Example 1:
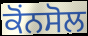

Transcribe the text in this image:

ਕੋਂਨਸੋਲ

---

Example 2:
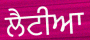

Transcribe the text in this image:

ਲੈਟੀਆ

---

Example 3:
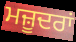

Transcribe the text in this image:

ਮਜ਼ੂਦਰਾਂ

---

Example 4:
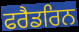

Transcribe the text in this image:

ਫਰੈਡਰਿਨ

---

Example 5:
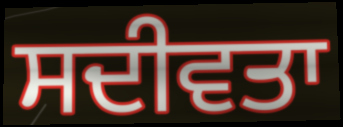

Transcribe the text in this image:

ਸਦੀਵਤਾ